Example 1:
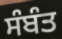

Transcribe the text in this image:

ਸੰਬੰਤ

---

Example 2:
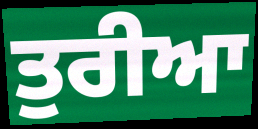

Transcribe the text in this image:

ਤੁਰੀਆ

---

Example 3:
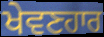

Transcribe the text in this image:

ਖੇਵਣਹਾਰ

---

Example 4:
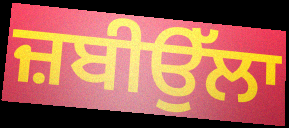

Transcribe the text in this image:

ਜ਼ਬੀਉੱਲਾ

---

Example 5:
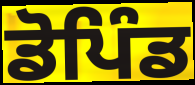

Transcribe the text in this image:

ਡੋਪਿੰਡ